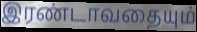
இரண்டாவதையும்